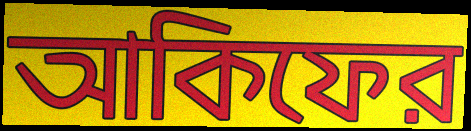
আকিফের